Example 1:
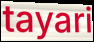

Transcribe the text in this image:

tayari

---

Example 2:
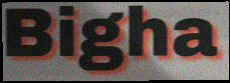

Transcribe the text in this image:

Bigha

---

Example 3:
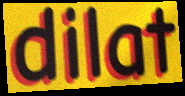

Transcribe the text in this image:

dilat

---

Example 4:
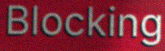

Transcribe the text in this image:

Blocking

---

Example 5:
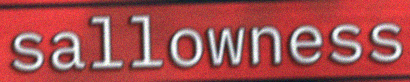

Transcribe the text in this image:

sallowness